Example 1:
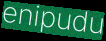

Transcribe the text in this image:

enipudu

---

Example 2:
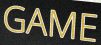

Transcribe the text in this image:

GAME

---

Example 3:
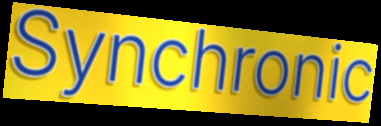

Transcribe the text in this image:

Synchronic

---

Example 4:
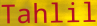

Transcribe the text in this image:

Tahlil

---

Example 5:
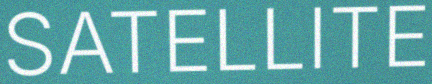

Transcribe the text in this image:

SATELLITE